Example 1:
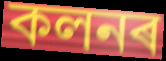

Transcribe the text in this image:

কলনৰ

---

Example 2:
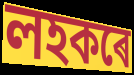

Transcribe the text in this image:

লহকৰে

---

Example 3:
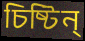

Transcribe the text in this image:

চিষ্টিন্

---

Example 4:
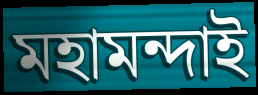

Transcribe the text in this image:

মহামন্দাই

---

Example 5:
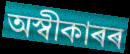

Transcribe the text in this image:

অস্বীকাৰৰ